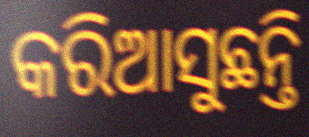
କରିଆସୁଛନ୍ତି